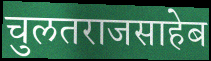
चुलतराजसाहेब